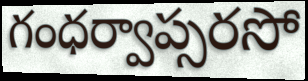
గంధర్వాప్సరసో